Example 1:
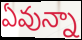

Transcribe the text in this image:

ఏవున్నా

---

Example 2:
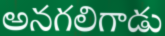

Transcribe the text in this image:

అనగలిగాడు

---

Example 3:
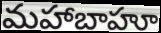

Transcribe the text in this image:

మహాబాహూ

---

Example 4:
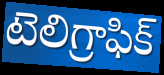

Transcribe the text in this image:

టెలిగ్రాఫిక్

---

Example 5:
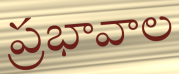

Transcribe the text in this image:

ప్రభావాల